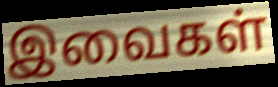
இவைகள்